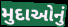
મુદાઓનું